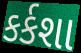
કર્કશા